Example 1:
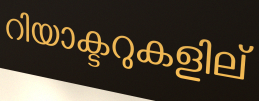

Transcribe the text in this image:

റിയാക്ടറുകളില്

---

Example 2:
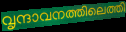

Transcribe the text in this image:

വൃന്ദാവനത്തിലെത്തി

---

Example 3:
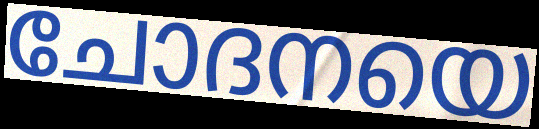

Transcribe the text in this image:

ചോദനയെ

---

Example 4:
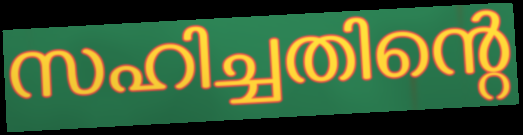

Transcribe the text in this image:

സഹിച്ചതിന്റെ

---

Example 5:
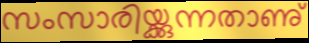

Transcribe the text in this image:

സംസാരിയ്ക്കുന്നതാണു്